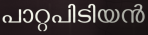
പാറ്റപിടിയൻ